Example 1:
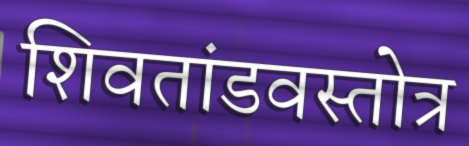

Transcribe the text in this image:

शिवतांडवस्तोत्र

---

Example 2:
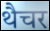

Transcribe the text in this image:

थैचर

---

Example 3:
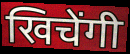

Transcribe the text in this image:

खिचेंगी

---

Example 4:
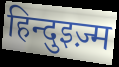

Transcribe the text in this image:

हिन्दुइज़्म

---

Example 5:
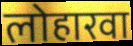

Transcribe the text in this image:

लोहारवा